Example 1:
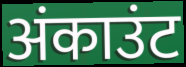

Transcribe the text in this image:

अंकाउंट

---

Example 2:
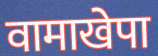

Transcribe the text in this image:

वामाखेपा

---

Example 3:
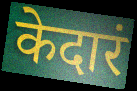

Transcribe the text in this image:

केदारं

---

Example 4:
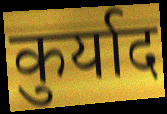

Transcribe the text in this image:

कुर्याद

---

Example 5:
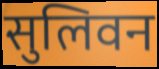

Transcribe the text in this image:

सुलिवन